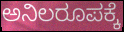
ಅನಿಲರೂಪಕ್ಕೆ